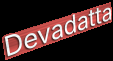
Devadatta